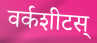
वर्कशीटस्